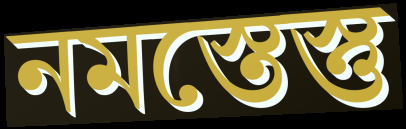
নমস্তেস্তু